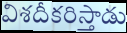
విశదీకరిస్తాడు